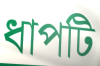
ধাপটি